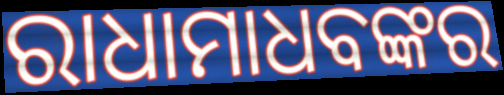
ରାଧାମାଧବଙ୍କର